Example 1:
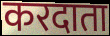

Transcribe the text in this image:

करदाता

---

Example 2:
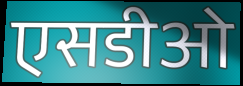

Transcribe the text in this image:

एसडीओ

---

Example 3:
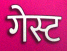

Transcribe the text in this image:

गेस्ट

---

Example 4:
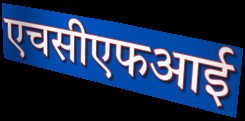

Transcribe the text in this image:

एचसीएफआई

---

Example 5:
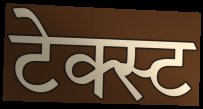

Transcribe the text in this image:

टेक्स्ट